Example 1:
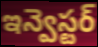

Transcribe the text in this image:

ఇన్వెస్టర్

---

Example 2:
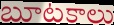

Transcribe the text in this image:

బూటకాలు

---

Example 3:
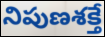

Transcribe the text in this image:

నిపుణశక్తే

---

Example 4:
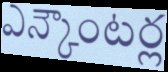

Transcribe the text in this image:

ఎన్కౌంటర్ల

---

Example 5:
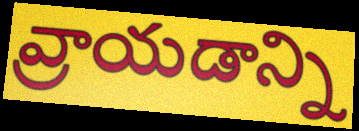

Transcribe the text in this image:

వ్రాయడాన్ని